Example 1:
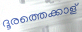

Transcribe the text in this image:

ദൂരത്തെക്കാള്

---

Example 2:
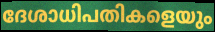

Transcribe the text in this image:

ദേശാധിപതികളെയും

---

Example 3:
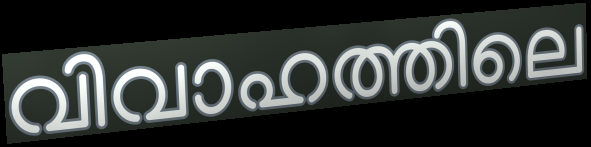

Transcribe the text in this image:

വിവാഹത്തിലെ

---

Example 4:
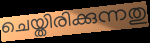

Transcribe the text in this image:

ചെയ്തിരിക്കുന്നതു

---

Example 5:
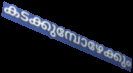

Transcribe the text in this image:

കടക്കുമ്പോഴേക്കും